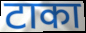
टाका